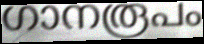
ഗാനരൂപം